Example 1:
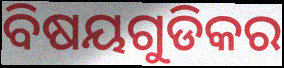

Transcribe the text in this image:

ବିଷୟଗୁଡିକର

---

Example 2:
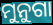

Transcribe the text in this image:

ମୁନୁଗା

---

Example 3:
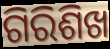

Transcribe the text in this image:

ଗିରିଶିଖ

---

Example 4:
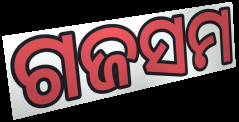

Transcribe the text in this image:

ଗଜସମ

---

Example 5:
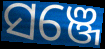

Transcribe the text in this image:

ସଞ୍ଜେ